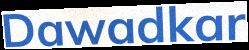
Dawadkar